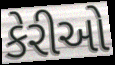
કેરીઓ